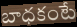
బాధకంటే